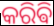
କରିଵି